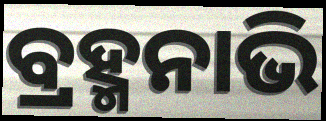
ବ୍ରହ୍ମନାଭି